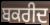
ਬਕਰੀਦ